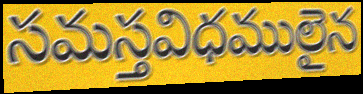
సమస్తవిధములైన